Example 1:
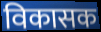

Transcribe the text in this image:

विकासक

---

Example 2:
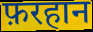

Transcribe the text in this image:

फ़रहान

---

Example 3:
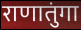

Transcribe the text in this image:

राणातुंगा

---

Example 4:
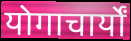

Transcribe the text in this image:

योगाचार्यों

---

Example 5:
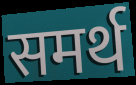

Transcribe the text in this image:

समर्थ